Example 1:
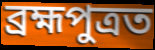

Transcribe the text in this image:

ব্ৰহ্মপুত্ৰত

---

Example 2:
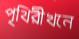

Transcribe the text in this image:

পৃথিৱীখনে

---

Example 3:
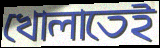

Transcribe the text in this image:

খোলাতেই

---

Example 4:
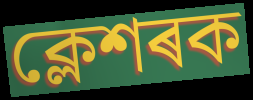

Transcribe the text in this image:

ক্লেশৰক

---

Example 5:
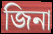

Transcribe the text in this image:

জিনা